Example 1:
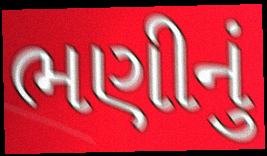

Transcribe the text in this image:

ભણીનું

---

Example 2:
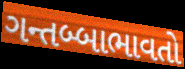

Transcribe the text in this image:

ગન્તબ્બાભાવતો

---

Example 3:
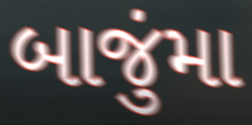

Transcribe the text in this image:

બાજુંમા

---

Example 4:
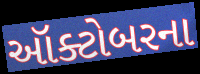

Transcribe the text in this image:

ઑક્ટોબરના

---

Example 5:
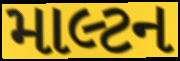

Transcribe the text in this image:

માલ્ટન